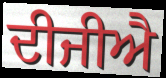
ਦੀਜੀਐ